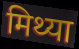
मिथ्या